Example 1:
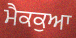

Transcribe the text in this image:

ਮੈਕਕੁਆ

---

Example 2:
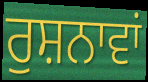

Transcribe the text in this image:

ਰੁਸ਼ਨਾਵਾਂ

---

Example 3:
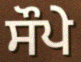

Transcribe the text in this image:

ਸੌਪੇ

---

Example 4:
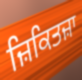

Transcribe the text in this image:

ਜ਼ਿਕਿਤਜ਼ਾ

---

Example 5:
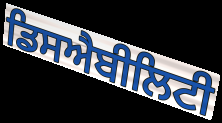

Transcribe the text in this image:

ਡਿਸਐਬੀਲਿਟੀ